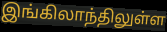
இங்கிலாந்திலுள்ள